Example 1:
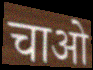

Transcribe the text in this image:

चाओ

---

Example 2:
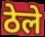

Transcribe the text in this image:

ठेले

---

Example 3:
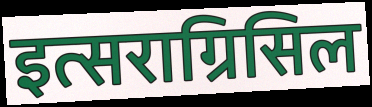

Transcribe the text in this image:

इत्सराग्रिसिल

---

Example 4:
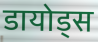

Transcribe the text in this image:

डायोड्स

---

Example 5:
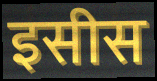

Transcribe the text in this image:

इसीस